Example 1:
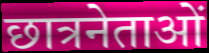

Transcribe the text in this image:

छात्रनेताओं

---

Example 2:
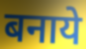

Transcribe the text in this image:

बनाये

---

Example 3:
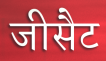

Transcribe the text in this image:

जीसैट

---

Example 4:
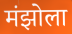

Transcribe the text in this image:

मंझोला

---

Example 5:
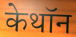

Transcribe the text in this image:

केथॉन